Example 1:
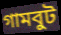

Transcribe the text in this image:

গামবুট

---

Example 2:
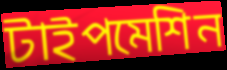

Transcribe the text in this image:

টাইপমেশিন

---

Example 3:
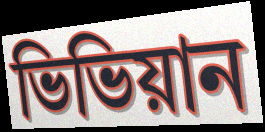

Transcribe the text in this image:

ভিভিয়ান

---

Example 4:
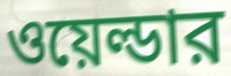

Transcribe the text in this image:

ওয়েল্ডার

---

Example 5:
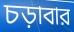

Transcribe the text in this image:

চড়াবার